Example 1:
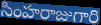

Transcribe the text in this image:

సింహరాజుగారి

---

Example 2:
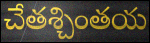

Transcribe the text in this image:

చేతశ్చింతయ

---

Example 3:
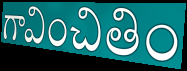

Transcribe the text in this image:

గావించితిం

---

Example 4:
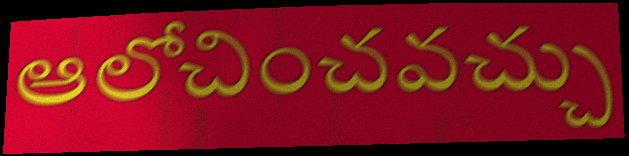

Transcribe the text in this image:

ఆలోచించవచ్చు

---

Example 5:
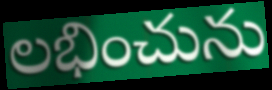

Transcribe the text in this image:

లభించును